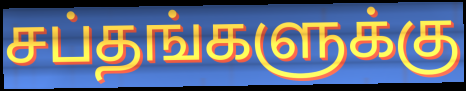
சப்தங்களுக்கு